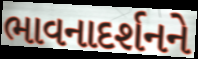
ભાવનાદર્શનને